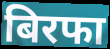
बिरफा